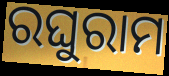
ରଘୁରାମ